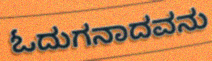
ಓದುಗನಾದವನು